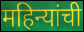
महिन्यांची